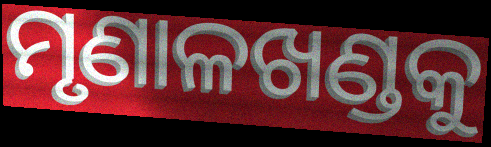
ମୃଣାଳଖଣ୍ଡକୁ